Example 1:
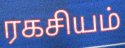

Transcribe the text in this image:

ரகசியம்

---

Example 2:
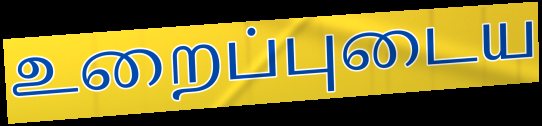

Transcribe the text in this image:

உறைப்புடைய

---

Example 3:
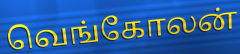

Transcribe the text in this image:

வெங்கோலன்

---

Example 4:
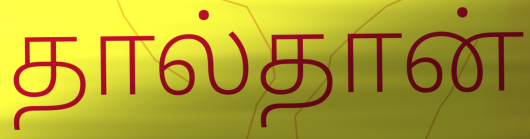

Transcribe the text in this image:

தால்தான்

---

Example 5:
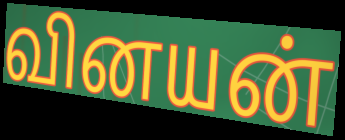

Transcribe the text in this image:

வினயன்